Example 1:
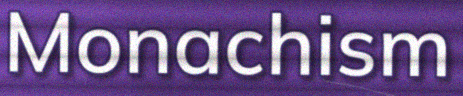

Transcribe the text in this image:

Monachism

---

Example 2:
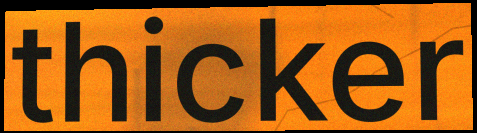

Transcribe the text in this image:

thicker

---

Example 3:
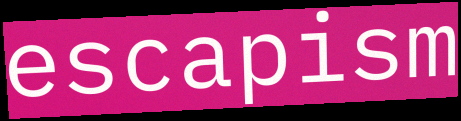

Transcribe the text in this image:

escapism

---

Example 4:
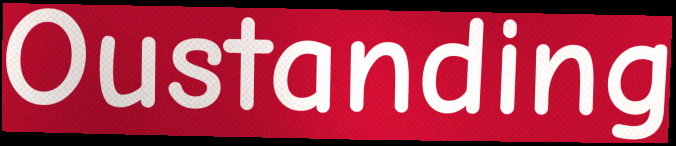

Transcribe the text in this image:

Oustanding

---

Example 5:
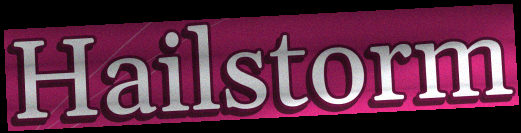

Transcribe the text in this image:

Hailstorm